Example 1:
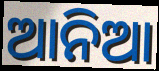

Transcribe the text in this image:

ଆନିଆ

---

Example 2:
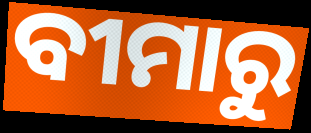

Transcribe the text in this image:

ବୀମାରୁ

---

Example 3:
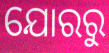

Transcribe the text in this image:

ଯୋରରୁ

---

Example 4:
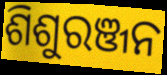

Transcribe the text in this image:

ଶିଶୁରଞ୍ଜନ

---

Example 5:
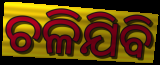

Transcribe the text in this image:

ଚଳିଯିବି